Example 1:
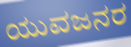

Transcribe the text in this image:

ಯುವಜನರ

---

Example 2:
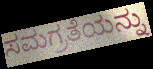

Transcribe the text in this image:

ಸಮಗ್ರತೆಯನ್ನು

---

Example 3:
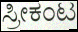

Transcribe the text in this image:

ಸ್ರೀಕಂಟ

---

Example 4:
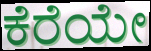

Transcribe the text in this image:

ಕೆರೆಯೇ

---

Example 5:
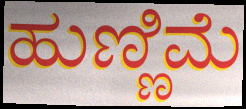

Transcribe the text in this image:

ಹುಣ್ಣಿಮೆ